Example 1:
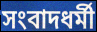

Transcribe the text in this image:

সংবাদধর্মী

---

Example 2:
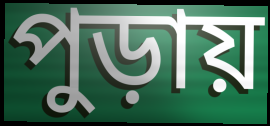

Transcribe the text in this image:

পুড়ায়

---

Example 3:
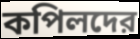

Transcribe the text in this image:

কপিলদের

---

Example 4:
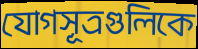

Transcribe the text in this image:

যোগসূত্রগুলিকে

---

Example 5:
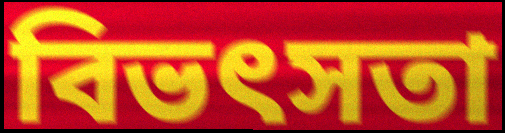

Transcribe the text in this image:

বিভৎসতা